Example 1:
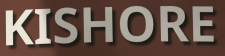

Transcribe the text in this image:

KISHORE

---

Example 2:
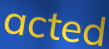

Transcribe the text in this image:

acted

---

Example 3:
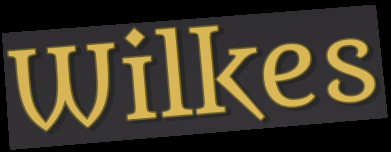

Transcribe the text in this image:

Wilkes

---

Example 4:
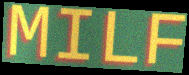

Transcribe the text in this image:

MILF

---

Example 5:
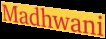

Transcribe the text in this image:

Madhwani